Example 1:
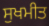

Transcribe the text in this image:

ਸੁਖਮੀਤ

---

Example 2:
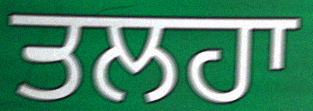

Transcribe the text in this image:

ਤਲਹਾ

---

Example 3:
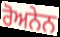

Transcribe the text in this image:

ਰੋਅਨੇਨ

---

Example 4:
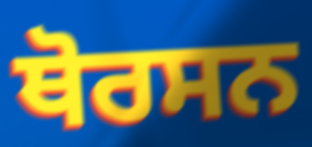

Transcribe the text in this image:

ਥੋਰਸਨ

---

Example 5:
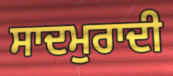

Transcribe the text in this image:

ਸਾਦਮੁਰਾਦੀ